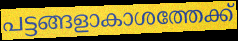
പട്ടങ്ങളാകാശത്തേക്ക്